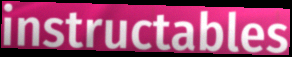
instructables